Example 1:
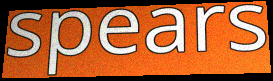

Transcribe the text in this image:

spears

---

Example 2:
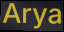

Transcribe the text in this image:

Arya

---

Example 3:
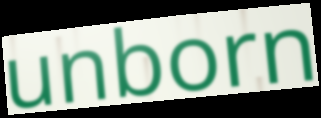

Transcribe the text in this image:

unborn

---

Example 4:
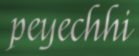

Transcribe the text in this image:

peyechhi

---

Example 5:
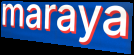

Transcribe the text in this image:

maraya